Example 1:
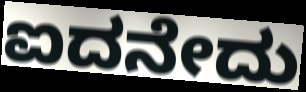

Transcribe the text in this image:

ಐದನೇದು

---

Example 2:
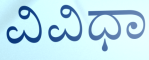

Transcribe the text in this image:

ವಿವಿಧಾ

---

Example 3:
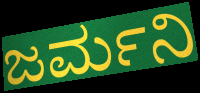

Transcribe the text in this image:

ಜರ್ಮನಿ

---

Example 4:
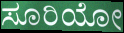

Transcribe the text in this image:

ಸೂರಿಯೋ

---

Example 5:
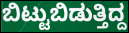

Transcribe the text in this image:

ಬಿಟ್ಟುಬಿಡುತ್ತಿದ್ದ